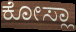
ಕೋಸ್ಲಾ